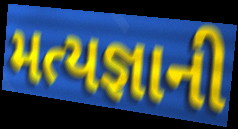
મત્યજ્ઞાની